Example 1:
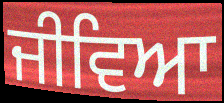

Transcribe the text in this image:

ਜੀਵਿਆ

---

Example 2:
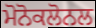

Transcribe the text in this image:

ਮੋਨੋਕਲੋਨਲ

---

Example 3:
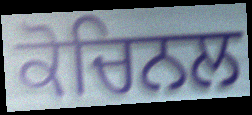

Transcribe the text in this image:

ਕੋਚਿਨਲ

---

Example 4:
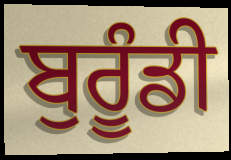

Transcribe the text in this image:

ਬੁਰੂੰਡੀ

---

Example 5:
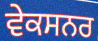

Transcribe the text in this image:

ਵੇਕਸਨਰ